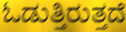
ಓಡುತ್ತಿರುತ್ತದೆ